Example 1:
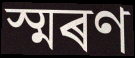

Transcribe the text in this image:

স্মৰণ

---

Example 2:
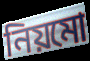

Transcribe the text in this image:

নিয়মো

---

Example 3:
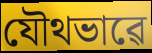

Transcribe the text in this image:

যৌথভাৱে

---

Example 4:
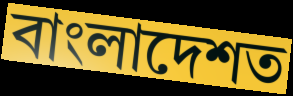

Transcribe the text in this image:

বাংলাদেশত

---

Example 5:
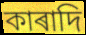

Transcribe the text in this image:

কাৰাদি